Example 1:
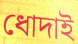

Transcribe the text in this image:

ধোদাই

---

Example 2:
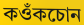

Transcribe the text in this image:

কওঁকচোন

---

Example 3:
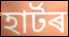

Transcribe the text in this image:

হাৰ্টৰ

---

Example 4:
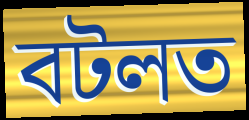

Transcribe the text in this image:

বটলত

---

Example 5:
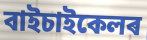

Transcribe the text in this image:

বাইচাইকেলৰ